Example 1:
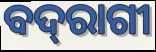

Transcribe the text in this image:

ବଦ୍‌ରାଗୀ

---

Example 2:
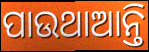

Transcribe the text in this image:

ପାଉଥାଆନ୍ତି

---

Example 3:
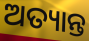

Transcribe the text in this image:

ଅତ୍ୟାନ୍ତ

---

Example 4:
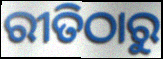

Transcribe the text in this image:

ରୀତିଠାରୁ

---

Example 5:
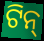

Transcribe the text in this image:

ଟିନ୍